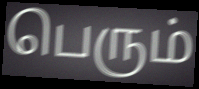
பெரும்